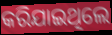
କରିଯାଇଥିଲେ